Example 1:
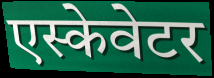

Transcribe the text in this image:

एस्केवेटर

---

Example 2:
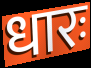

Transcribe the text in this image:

धारः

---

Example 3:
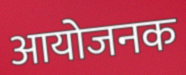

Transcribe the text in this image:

आयोजनक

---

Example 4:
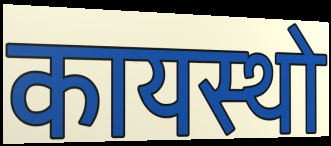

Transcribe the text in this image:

कायस्थो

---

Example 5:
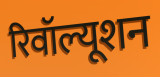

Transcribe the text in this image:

रिवॉल्यूशन